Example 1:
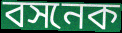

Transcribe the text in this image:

বসনেক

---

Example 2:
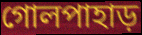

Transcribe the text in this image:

গোলপাহাড়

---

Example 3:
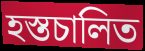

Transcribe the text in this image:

হস্তচালিত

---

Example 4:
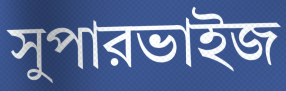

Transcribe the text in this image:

সুপারভাইজ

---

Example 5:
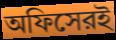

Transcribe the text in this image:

অফিসেরই